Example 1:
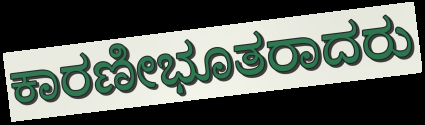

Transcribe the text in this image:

ಕಾರಣೀಭೂತರಾದರು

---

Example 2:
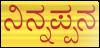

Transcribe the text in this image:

ನಿನ್ನಪ್ಪನ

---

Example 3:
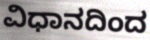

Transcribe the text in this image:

ವಿಧಾನದಿಂದ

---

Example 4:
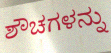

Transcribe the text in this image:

ಶೌಚಗಳನ್ನು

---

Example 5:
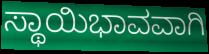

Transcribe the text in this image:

ಸ್ಥಾಯಿಭಾವವಾಗಿ